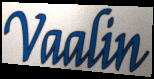
Vaalin